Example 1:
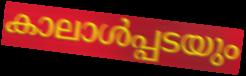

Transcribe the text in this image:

കാലാൾപ്പടയും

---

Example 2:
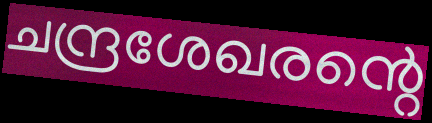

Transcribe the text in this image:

ചന്ദ്രശേഖരന്റെ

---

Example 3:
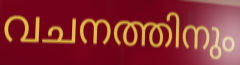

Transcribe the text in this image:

വചനത്തിനും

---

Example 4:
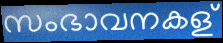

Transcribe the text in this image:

സംഭാവനകള്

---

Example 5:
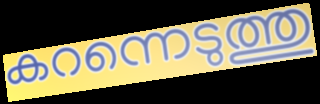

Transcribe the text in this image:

കറന്നെടുത്തു